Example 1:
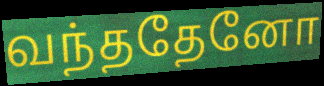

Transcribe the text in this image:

வந்ததேனோ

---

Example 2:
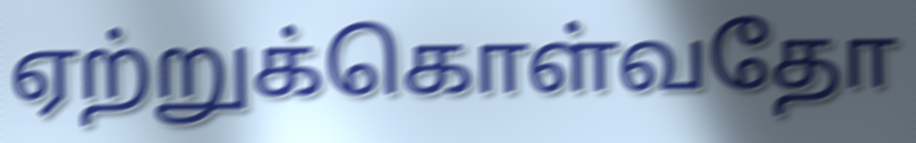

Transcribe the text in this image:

ஏற்றுக்கொள்வதோ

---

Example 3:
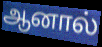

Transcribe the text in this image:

ஆனால்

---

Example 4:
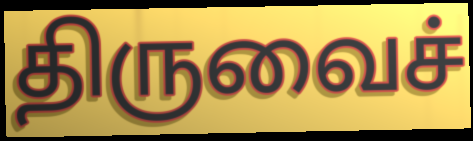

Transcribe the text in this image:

திருவைச்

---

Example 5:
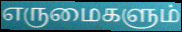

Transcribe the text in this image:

எருமைகளும்